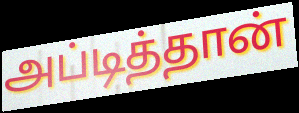
அப்டித்தான்